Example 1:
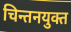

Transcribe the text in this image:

चिन्तनयुक्त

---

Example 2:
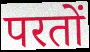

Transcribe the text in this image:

परतों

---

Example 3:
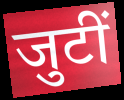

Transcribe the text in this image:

जुटीं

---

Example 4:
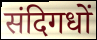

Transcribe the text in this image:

संदिगधों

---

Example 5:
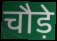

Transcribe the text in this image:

चौड़े